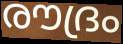
രൗദ്രം